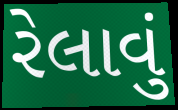
રેલાવું